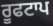
ਰੂਫਟਾਪ